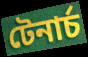
টেনাৰ্চ